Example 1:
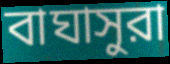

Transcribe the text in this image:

বাঘাসুরা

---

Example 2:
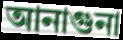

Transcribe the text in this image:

আনাগুনা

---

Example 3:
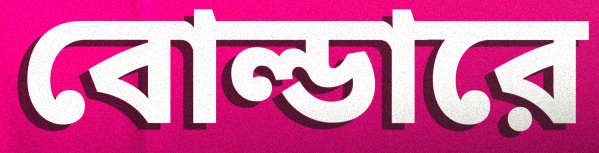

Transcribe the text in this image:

বোল্ডারে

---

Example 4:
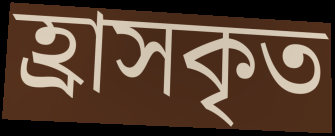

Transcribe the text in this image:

হ্রাসকৃত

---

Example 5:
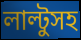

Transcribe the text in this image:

লাল্টুসহ